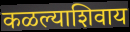
कळल्याशिवाय